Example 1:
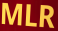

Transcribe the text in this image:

MLR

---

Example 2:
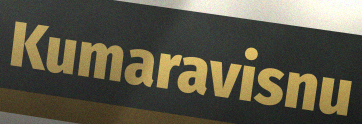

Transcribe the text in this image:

Kumaravisnu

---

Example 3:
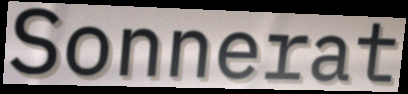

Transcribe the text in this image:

Sonnerat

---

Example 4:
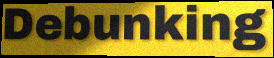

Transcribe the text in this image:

Debunking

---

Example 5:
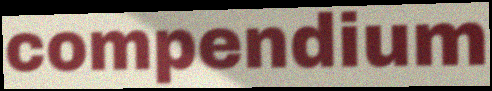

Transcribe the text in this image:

compendium